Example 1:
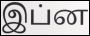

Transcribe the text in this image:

இப்ன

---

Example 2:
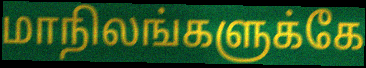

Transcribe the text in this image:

மாநிலங்களுக்கே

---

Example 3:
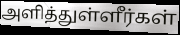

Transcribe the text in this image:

அளித்துள்ளீர்கள்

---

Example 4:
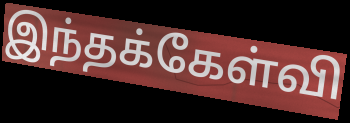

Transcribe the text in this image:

இந்தக்கேள்வி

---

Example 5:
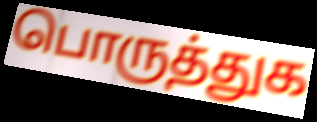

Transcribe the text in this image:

பொருத்துக